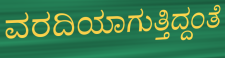
ವರದಿಯಾಗುತ್ತಿದ್ದಂತೆ